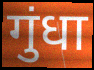
गुंधा